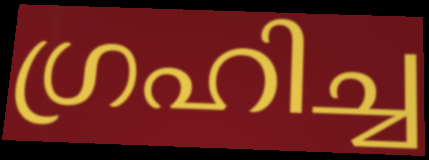
ഗ്രഹിച്ച